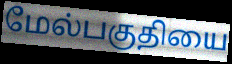
மேல்பகுதியை